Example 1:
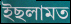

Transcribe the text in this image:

ইছলামত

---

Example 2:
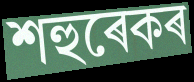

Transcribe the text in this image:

শহুৰেকৰ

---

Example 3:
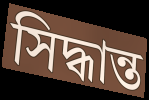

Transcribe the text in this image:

সিদ্ধান্ত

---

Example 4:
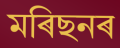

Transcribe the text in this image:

মৰিছনৰ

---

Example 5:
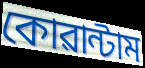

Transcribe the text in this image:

কোৱান্টাম